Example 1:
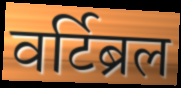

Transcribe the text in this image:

वर्टिब्रल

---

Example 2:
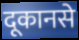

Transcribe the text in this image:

दूकानसे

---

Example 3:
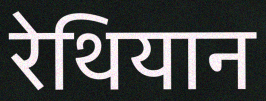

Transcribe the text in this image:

रेथियान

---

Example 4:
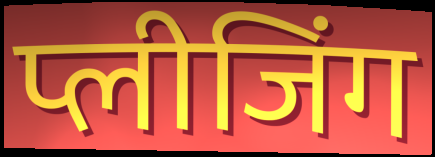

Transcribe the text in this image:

प्लीजिंग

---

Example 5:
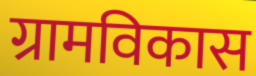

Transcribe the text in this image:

ग्रामविकास